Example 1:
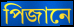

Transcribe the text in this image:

পিজানে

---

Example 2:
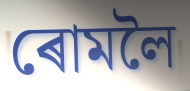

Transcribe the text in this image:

ৰোমলৈ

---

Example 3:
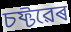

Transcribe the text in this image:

চফ্টৱেৰ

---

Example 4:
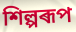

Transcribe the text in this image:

শিল্পৰূপ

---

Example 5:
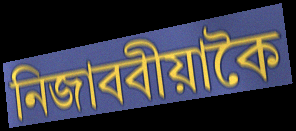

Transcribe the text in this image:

নিজাববীয়াকৈ